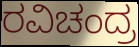
ರವಿಚಂದ್ರ